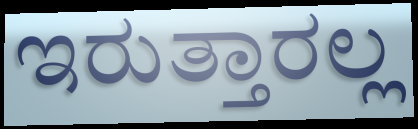
ಇರುತ್ತಾರಲ್ಲ